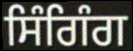
ਸਿੰਗਿੰਗ